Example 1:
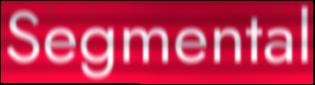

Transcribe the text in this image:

Segmental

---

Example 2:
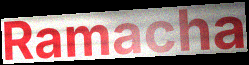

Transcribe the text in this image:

Ramacha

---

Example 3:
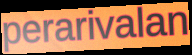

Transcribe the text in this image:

perarivalan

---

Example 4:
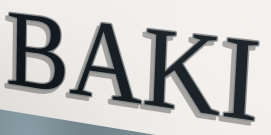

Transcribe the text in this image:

BAKI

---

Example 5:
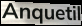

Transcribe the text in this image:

Anquetil